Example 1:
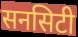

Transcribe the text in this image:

सनसिटी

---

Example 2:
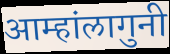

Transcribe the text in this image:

आम्हांलागुनी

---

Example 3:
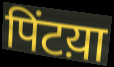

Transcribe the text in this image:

पिंटय़ा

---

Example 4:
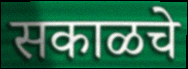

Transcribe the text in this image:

सकाळचे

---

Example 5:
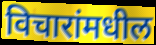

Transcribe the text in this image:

विचारांमधील